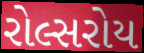
રોલ્સરોય